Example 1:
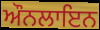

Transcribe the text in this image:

ਔਨਲਾਇਨ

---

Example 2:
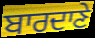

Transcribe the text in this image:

ਬਾਰਦਾਣੇ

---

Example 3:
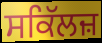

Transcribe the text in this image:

ਸਕਿੱਲਜ਼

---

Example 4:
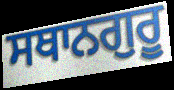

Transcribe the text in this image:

ਸਥਾਨਗੁਰੂ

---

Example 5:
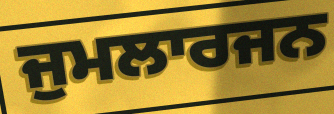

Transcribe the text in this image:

ਜੁਮਲਾਰਜਨ